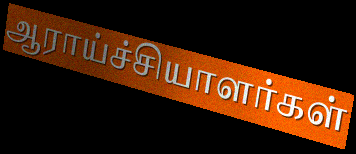
ஆராய்ச்சியாளர்கள்